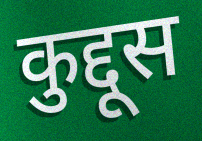
कुद्दूस